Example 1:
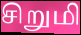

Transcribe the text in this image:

சிறுமி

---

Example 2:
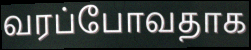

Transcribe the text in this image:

வரப்போவதாக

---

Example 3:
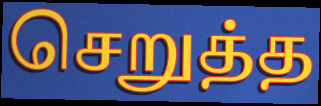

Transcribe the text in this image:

செறுத்த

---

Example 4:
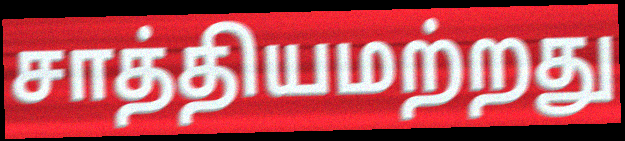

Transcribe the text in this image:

சாத்தியமற்றது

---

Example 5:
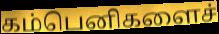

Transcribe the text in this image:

கம்பெனிகளைச்